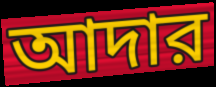
আদার